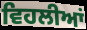
ਵਿਹਲੀਆਂ